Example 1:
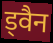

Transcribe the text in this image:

ड्वैन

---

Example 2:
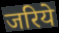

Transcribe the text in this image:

जरिये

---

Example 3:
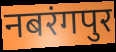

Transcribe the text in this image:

नबरंगपुर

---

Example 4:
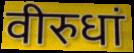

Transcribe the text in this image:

वीरुधां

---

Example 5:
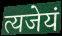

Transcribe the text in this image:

त्यजेयं